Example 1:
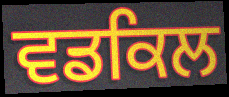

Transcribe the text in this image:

ਵਡਕਿਲ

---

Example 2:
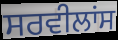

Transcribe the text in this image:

ਸਰਵੀਲਾਂਸ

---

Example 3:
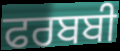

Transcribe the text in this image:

ਫਰਬਬੀ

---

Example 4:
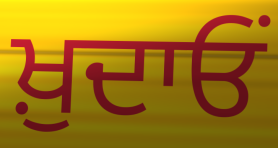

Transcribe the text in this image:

ਖ਼ੁਦਾਓਂ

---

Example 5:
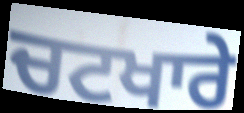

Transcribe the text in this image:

ਚਟਖਾਰੇ